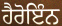
ਹੈਰੋਇੰਨ